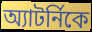
অ্যাটর্নিকে